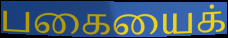
பகையைக்